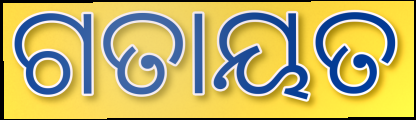
ଗତାୟତ